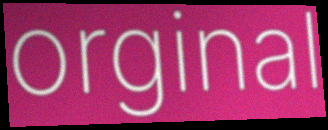
orginal